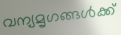
വന്യമൃഗങ്ങൾക്ക്